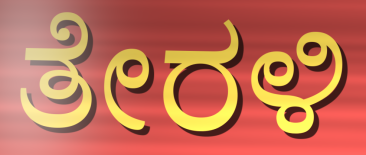
ತೇರಳಿ